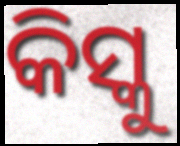
କିସ୍କୁ